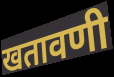
खतावणी